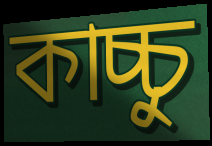
কাচ্চু